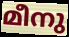
മീനു